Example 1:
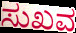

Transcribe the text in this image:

ಸುಖವ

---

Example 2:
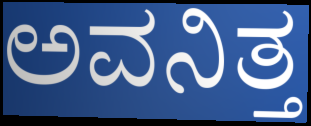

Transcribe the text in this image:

ಅವನಿತ್ತ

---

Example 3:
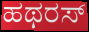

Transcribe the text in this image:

ಹಥರಸ್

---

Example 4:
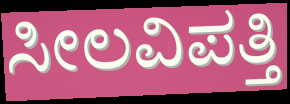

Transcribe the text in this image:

ಸೀಲವಿಪತ್ತಿ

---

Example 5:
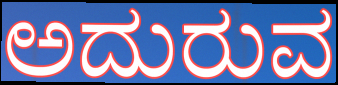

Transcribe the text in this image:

ಅದುರುವ